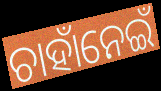
ଚାହାଁନେଇଁ